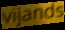
vijands